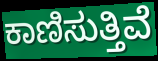
ಕಾಣಿಸುತ್ತಿವೆ